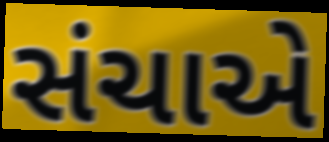
સંચાએ